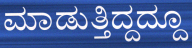
ಮಾಡುತ್ತಿದ್ದದ್ದೂ